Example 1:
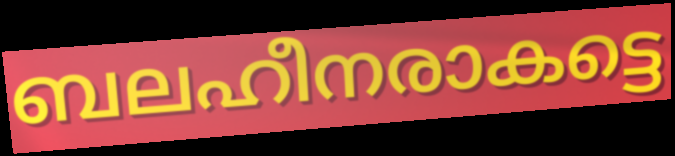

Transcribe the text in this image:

ബലഹീനരാകട്ടെ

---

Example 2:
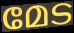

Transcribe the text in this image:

മേട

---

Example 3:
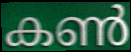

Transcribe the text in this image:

കൺ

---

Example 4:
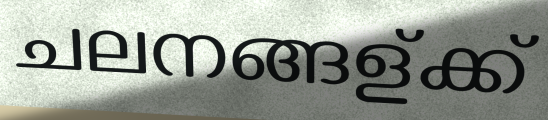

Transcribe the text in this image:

ചലനങ്ങള്ക്ക്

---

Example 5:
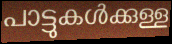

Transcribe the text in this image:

പാട്ടുകൾക്കുള്ള